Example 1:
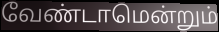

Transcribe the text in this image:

வேண்டாமென்றும்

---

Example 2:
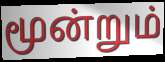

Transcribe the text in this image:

மூன்றும்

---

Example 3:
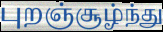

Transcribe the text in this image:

புறஞ்சூழ்ந்து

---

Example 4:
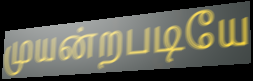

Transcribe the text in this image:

முயன்றபடியே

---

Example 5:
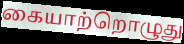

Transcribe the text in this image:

கையாற்றொழுது